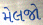
મેલજો